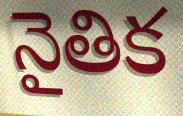
నైతిక